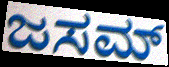
ಜಸಮ್